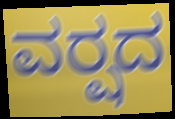
ವರ್‍ಷದ